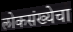
लोकसंख्येचा